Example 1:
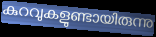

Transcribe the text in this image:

കുറവുകളുണ്ടായിരുന്നു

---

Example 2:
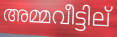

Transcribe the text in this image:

അമ്മവീട്ടില്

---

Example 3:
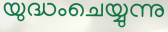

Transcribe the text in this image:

യുദ്ധംചെയ്യുന്നു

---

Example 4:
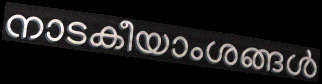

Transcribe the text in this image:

നാടകീയാംശങ്ങൾ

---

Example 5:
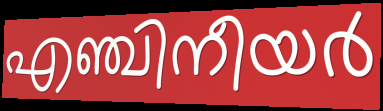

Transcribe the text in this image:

എഞ്ചിനീയർ